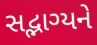
સદ્ભાગ્યને